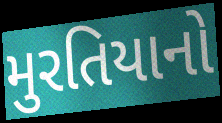
મુરતિયાનો